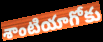
శాంటియాగోకు